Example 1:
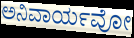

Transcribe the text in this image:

ಅನಿವಾರ್ಯವೋ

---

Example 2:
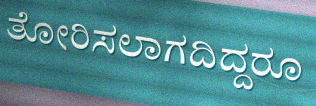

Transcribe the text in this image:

ತೋರಿಸಲಾಗದಿದ್ದರೂ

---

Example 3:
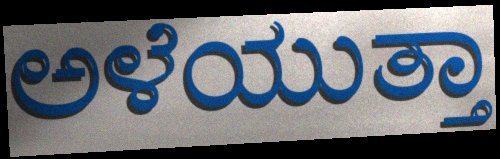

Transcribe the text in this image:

ಅಳೆಯುತ್ತಾ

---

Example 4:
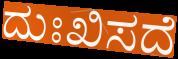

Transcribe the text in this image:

ದುಃಖಿಸದೆ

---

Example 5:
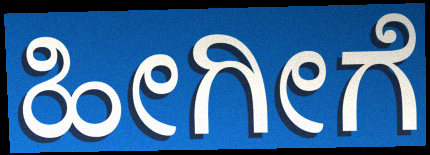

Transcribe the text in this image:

ಹೀಗೀಗೆ